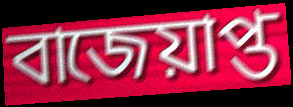
বাজেয়াপ্ত